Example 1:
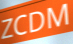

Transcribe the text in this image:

ZCDM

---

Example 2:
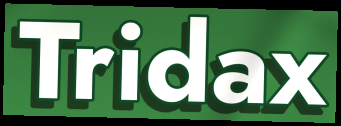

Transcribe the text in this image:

Tridax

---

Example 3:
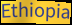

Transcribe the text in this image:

Ethiopia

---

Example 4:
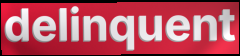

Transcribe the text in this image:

delinquent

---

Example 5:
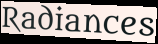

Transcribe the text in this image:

Radiances